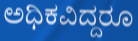
ಅಧಿಕವಿದ್ದರೂ